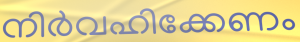
നിർവഹിക്കേണം